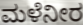
ಮಳೆನೀರ